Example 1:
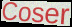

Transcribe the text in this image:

Coser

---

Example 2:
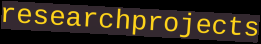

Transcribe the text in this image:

researchprojects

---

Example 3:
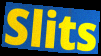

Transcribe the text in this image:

Slits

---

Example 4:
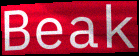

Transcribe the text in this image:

Beak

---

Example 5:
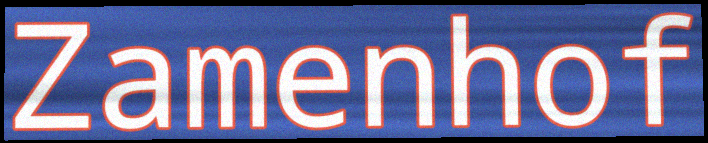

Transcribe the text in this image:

Zamenhof